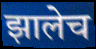
झालेच